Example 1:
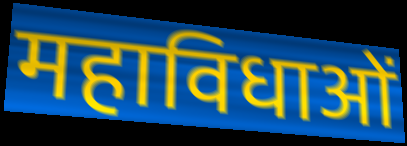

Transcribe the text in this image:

महाविधाओं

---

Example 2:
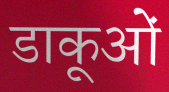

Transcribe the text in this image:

डाकूओं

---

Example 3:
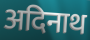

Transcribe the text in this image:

अदिनाथ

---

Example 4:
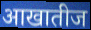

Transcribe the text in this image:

आखातीज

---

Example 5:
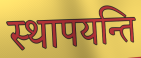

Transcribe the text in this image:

स्थापयन्ति